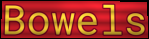
Bowels